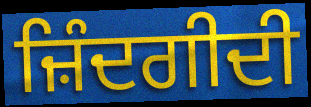
ਜ਼ਿੰਦਗੀਦੀ